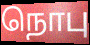
நொபு